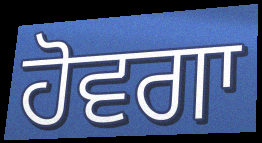
ਹੋਵਗਾ